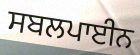
ਸਬਲਪਾਈਨ